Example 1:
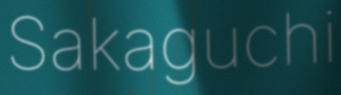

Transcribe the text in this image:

Sakaguchi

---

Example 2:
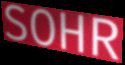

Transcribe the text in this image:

SOHR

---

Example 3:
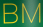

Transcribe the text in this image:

BM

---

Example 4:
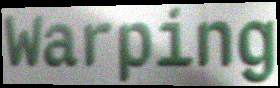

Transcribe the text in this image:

Warping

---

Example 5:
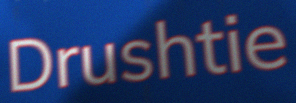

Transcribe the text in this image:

Drushtie